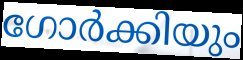
ഗോർക്കിയും